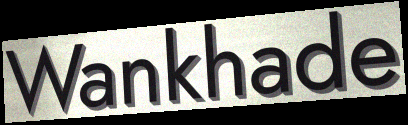
Wankhade